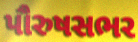
પૌરુષસભર